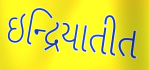
ઇન્દ્રિયાતીત